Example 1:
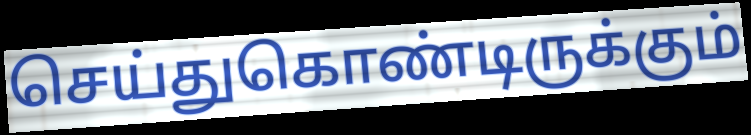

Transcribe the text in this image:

செய்துகொண்டிருக்கும்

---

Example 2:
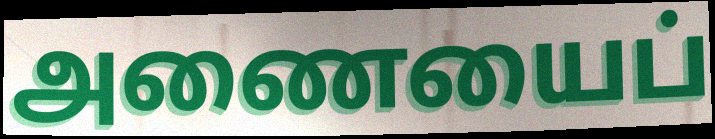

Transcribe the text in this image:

அணையைப்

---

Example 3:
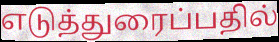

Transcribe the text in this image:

எடுத்துரைப்பதில்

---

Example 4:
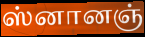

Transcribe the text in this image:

ஸ்னானஞ்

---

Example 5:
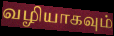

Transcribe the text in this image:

வழியாகவும்